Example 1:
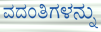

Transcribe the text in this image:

ವದಂತಿಗಳನ್ನು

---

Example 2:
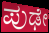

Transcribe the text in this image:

ಪುಢೇ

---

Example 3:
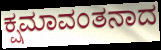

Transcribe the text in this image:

ಕ್ಷಮಾವಂತನಾದ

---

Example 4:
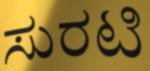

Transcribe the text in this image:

ಸುರಟಿ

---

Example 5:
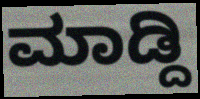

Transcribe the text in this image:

ಮಾಡ್ದಿ